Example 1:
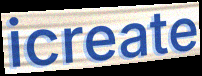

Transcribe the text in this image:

icreate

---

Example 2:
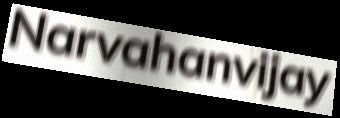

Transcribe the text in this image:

Narvahanvijay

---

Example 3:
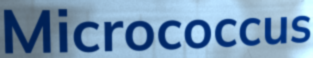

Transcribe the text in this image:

Micrococcus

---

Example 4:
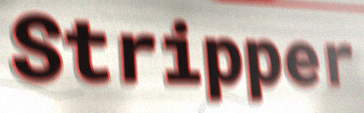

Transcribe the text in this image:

Stripper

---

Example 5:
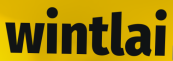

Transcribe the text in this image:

wintlai